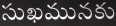
సుఖమునకు